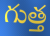
గుత్త